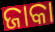
ଜାକା